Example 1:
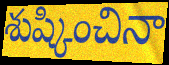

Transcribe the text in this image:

శుష్కించినా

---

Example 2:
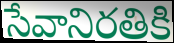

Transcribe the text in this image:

సేవానిరతికి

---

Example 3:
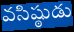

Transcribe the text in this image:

వసిష్ఠుడు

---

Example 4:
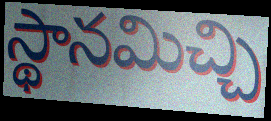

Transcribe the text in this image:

స్థానమిచ్చి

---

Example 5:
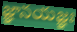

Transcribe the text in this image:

జ్ఞానయజ్ఞః